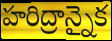
హరిద్రాన్నైక